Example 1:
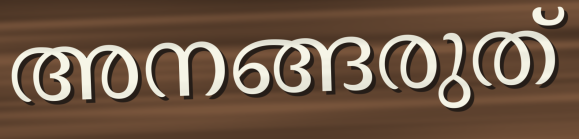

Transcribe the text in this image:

അനങ്ങരുത്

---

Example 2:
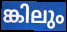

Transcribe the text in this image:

ങ്കിലും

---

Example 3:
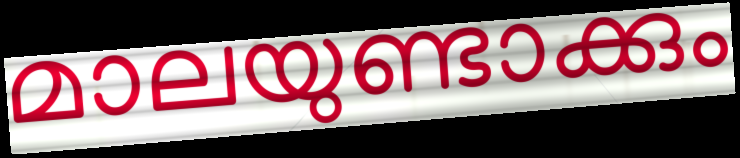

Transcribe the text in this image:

മാലയുണ്ടാക്കും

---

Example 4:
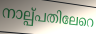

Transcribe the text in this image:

നാല്പ്പതിലേറെ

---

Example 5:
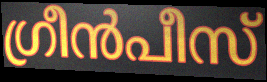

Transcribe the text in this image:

ഗ്രീൻപീസ്